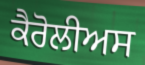
ਕੈਰੋਲੀਅਸ